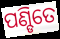
ପଣ୍ଡିତେ